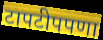
टापटीपपणा